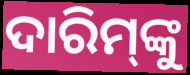
ଦାରିମ୍‍ଙ୍କୁ